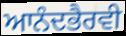
ਆਨੰਦਭੈਰਵੀ